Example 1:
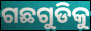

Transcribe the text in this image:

ଗଛଗୁଡିକୁ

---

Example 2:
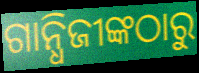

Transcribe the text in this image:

ଗାନ୍ଧିଜୀଙ୍କଠାରୁ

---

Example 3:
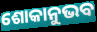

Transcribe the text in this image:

ଶୋକାନୁଭବ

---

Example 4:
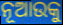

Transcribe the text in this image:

ନୂଆଉକୁ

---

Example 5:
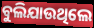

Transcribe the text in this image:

ବୁଲିଯାଉଥିଲେ